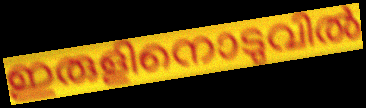
ഇരുളിനൊടുവിൽ